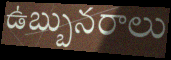
ఉబ్బునరాలు